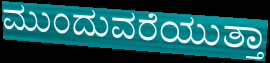
ಮುಂದುವರೆಯುತ್ತಾ